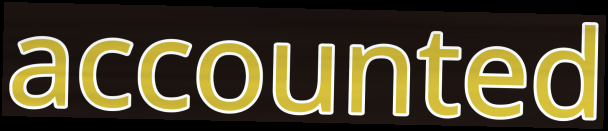
accounted